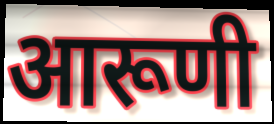
आरूणी